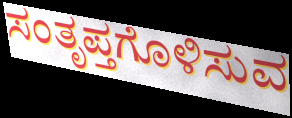
ಸಂತೃಪ್ತಗೊಳಿಸುವ